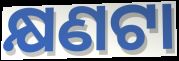
କ୍ଷଣଟା